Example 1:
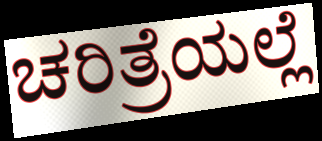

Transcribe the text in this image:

ಚರಿತ್ರೆಯಲ್ಲೆ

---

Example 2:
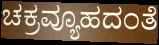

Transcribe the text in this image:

ಚಕ್ರವ್ಯೂಹದಂತೆ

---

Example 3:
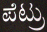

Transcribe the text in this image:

ಪೆಟ್ರು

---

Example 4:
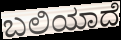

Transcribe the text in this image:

ಬಲಿಯಾದೆ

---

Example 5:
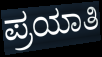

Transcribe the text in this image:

ಪ್ರಯಾತಿ